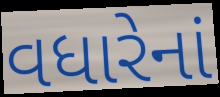
વધારેનાં